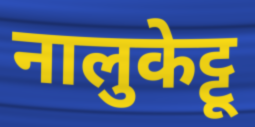
नालुकेट्टू